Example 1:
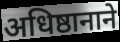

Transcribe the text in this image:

अधिष्ठानाने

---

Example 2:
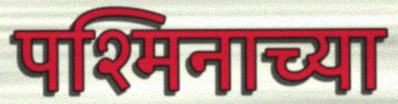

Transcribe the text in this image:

पश्मिनाच्या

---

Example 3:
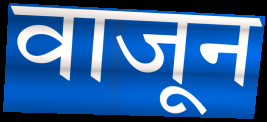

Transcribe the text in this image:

वाजून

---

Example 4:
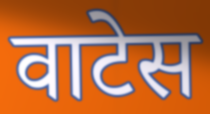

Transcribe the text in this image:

वाटेस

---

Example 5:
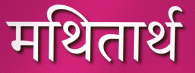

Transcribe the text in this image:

मथितार्थ